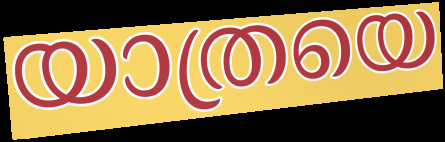
യാത്രയെ